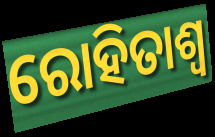
ରୋହିତାଶ୍ୱ